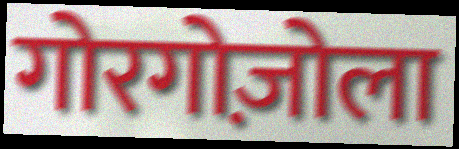
गोरगोज़ोला